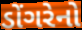
ડોંગરેનો